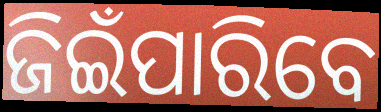
ଜିଇଁପାରିବେ